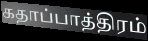
கதாப்பாத்திரம்